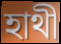
হাথী